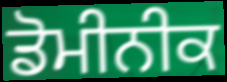
ਡੋਮੀਨੀਕ